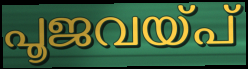
പൂജവയ്പ്